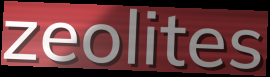
zeolites